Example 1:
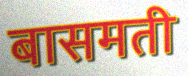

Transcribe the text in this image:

बासमती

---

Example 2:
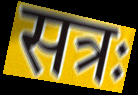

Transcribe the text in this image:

सत्रः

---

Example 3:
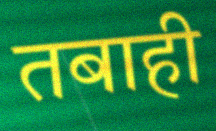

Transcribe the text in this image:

तबाही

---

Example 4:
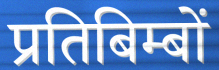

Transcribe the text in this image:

प्रतिबिम्बों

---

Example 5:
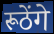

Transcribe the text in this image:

रूठेंगे